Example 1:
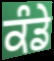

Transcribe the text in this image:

ਕੰਡੇ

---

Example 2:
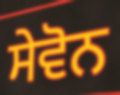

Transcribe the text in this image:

ਸੇਵੋਨ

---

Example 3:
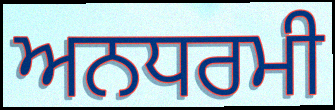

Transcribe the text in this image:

ਅਨਧਰਮੀ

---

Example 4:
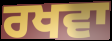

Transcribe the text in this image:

ਰਖਵਾ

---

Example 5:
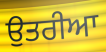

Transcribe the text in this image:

ਉਤਰੀਆ